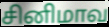
சினிமாவ